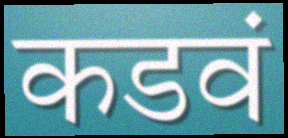
कडवं